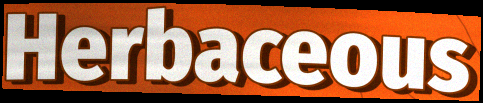
Herbaceous